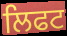
ਲਿਫਟ